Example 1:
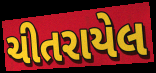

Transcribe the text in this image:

ચીતરાયેલ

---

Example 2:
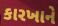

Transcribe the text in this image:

કારખાને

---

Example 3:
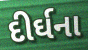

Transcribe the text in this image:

દીર્ઘના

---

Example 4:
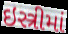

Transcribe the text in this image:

ઇસ્ત્રીમાં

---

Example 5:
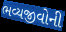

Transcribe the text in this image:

ભવ્યજીવોની